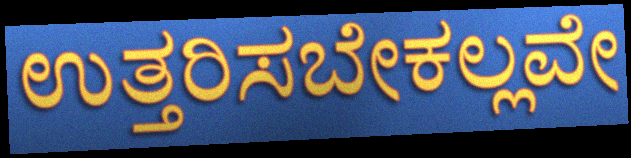
ಉತ್ತರಿಸಬೇಕಲ್ಲವೇ